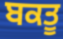
ਬਕਤੂ